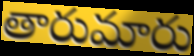
తారుమారు